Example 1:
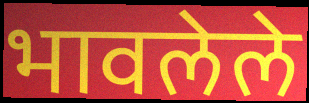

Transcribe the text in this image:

भावलेले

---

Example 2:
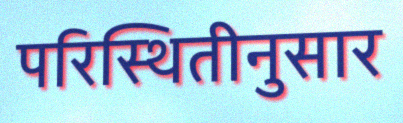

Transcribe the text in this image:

परिस्थितीनुसार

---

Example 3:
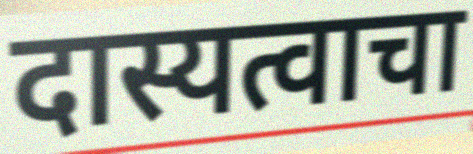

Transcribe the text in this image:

दास्यत्वाचा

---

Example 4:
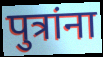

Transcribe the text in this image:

पुत्रांना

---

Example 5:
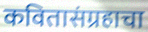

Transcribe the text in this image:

कवितासंग्रहाचा